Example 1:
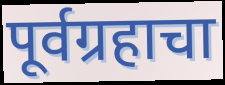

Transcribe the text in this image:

पूर्वग्रहाचा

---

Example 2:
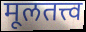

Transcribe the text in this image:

मूलतत्त्व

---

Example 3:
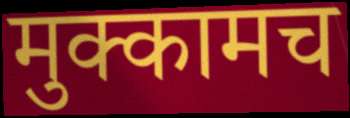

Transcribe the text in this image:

मुक्कामच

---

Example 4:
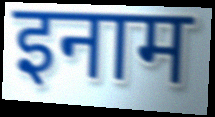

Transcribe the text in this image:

इनाम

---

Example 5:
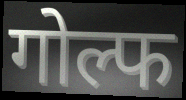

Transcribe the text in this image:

गोल्फ